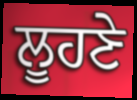
ਲੂਹਣੇ